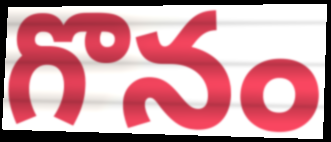
గొనం